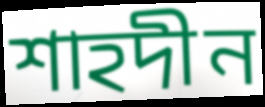
শাহদীন